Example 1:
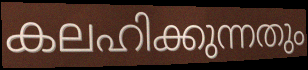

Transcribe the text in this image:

കലഹിക്കുന്നതും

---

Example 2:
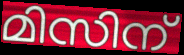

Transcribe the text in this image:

മിസിന്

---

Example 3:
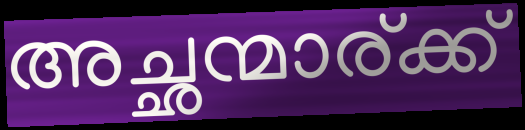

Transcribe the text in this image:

അച്ഛന്മാര്ക്ക്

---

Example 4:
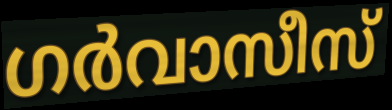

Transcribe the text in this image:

ഗർവാസീസ്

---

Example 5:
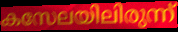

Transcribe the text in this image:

കസേലയിലിരുന്ന്